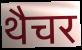
थैचर